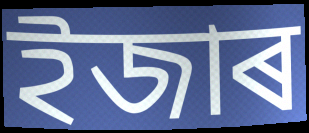
ইজাৰ